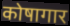
कोषागार